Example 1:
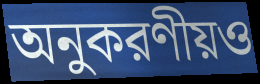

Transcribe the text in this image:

অনুকরণীয়ও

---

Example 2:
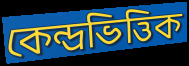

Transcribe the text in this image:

কেন্দ্রভিত্তিক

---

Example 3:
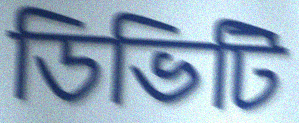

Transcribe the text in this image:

ডিভিটি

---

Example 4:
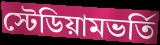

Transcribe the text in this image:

স্টেডিয়ামভর্তি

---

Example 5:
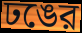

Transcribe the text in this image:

ঢঙের